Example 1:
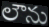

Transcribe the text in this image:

లౌను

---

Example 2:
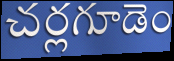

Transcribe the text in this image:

చర్లగూడెం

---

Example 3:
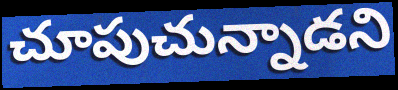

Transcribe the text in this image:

చూపుచున్నాడని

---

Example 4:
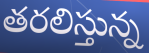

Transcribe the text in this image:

తరలిస్తున్న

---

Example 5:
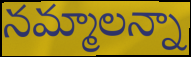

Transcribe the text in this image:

నమ్మాలన్నా